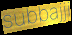
subbajji